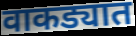
वाकड्यात